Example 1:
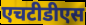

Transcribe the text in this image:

एचटीडीएस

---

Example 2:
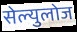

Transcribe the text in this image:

सेल्युलोज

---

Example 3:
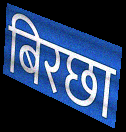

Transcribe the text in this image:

बिरछा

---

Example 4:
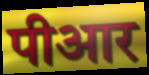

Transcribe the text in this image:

पीआर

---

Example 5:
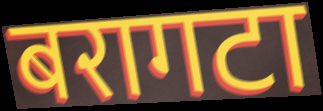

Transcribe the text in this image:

बरागटा